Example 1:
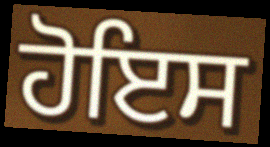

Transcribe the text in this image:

ਹੋਇਸ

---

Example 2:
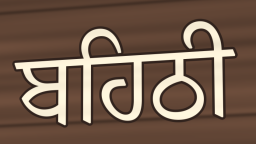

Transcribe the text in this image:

ਬਹਿਠੀ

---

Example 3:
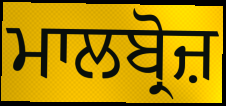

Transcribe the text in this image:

ਮਾਲਬ੍ਰੋਜ਼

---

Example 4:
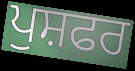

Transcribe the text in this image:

ਪੁਸ਼ਫਰ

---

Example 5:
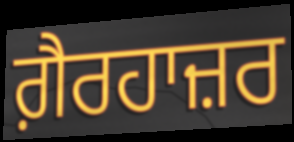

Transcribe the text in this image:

ਗ਼ੈਰਹਾਜ਼ਰ